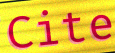
Cite